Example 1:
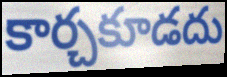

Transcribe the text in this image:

కార్చకూడదు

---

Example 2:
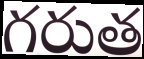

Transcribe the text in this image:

గరుత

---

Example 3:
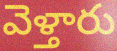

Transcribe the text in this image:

వెళ్తారు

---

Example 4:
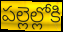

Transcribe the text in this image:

పల్లెల్లోకి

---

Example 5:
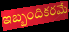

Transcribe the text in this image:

ఇబ్బందికరమే